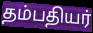
தம்பதியர்